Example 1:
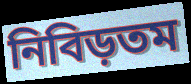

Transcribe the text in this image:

নিবিড়তম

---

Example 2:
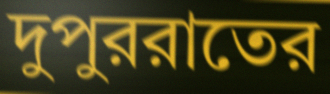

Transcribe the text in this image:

দুপুররাতের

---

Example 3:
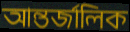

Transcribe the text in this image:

আন্তর্জালিক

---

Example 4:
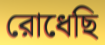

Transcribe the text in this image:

রোধেছি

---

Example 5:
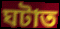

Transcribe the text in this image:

ঘটাত